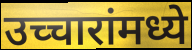
उच्चारांमध्ये